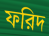
ফরিদ